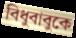
বিধুবাবুকে